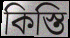
কিস্তি